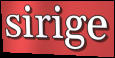
sirige